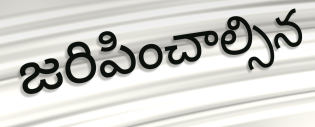
జరిపించాల్సిన